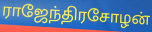
ராஜேந்திரசோழன்